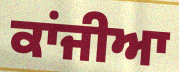
ਕਾਂਜੀਆ